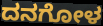
ದನಗೋಳ